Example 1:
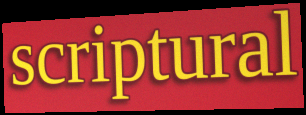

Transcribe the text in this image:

scriptural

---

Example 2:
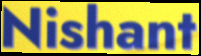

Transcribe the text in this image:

Nishant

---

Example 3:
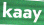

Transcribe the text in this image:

kaay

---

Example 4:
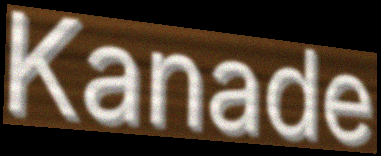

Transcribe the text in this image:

Kanade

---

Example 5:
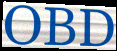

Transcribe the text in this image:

OBD